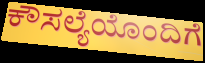
ಕೌಸಲ್ಯೆಯೊಂದಿಗೆ